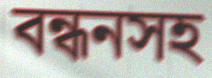
বন্ধনসহ